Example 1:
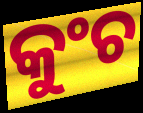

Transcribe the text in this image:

କୁଂଚ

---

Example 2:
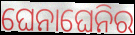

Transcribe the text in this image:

ଘେନାଘେନିର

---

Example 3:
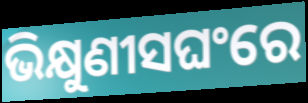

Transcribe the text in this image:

ଭିକ୍ଷୁଣୀସଘଂରେ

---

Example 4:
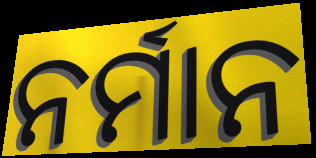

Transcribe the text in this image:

ନର୍ମାନ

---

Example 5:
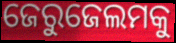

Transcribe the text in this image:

ଜେରୁଜେଲମକୁ